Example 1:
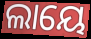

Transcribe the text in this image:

ଲାୟେ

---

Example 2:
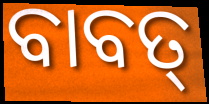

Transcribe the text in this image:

ବାବତ୍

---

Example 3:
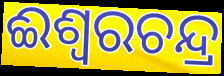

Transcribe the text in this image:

ଈଶ୍ୱରଚନ୍ଦ୍ର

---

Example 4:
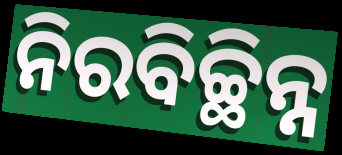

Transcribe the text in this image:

ନିରବିଚ୍ଛିନ୍ନ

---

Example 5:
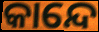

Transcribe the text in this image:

କାନ୍ଦେ